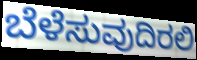
ಬೆಳೆಸುವುದಿರಲಿ